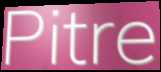
Pitre